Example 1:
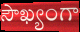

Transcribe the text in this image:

సౌఖ్యంగా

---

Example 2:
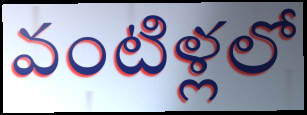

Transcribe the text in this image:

వంటిళ్లలో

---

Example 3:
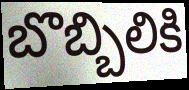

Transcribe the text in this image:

బొబ్బిలికి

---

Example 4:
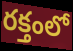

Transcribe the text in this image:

రక్తంలో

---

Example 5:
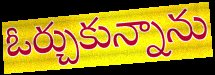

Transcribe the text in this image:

ఓర్చుకున్నాను